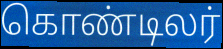
கொண்டிலர்